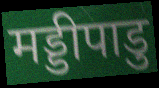
मड्डीपाडु